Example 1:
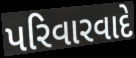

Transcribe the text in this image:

પરિવારવાદે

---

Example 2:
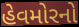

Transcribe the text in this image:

હેવમોરનો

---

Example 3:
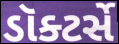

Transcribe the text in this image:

ડૉક્ટર્સે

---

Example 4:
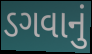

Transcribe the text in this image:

ડગવાનું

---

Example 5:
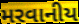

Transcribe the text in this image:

મરવાનીય